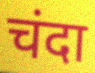
चंदा